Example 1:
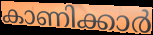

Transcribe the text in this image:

കാണിക്കാർ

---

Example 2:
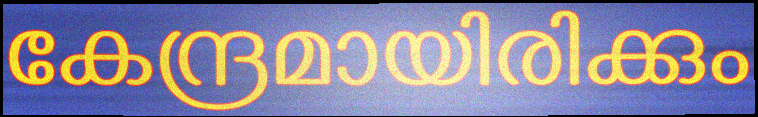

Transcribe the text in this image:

കേന്ദ്രമായിരിക്കും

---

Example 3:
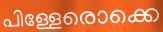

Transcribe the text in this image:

പിള്ളേരൊക്കെ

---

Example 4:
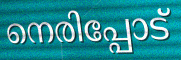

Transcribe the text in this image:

നെരിപ്പോട്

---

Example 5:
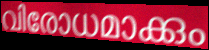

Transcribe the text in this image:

വിരോധമാക്കും